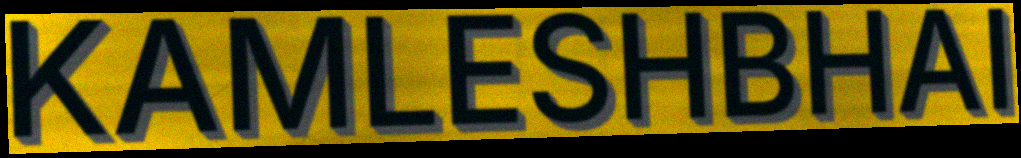
KAMLESHBHAI